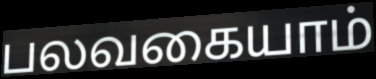
பலவகையாம்